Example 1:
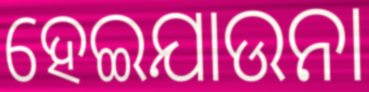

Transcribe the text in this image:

ହେଇଯାଉନା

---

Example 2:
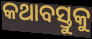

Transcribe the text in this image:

କଥାବସ୍ତୁକୁ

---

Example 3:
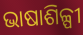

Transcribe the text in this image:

ଭାଷାଶିଳ୍ପୀ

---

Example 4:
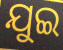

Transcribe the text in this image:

ଯୁଇ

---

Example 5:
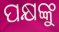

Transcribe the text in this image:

ପକ୍ଷଙ୍କୁ